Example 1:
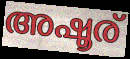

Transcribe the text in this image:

അഷൂര്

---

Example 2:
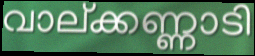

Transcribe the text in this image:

വാല്ക്കണ്ണാടി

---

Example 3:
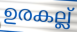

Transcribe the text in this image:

ഉരകല്ല്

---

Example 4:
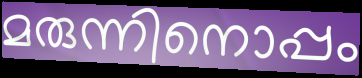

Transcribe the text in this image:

മരുന്നിനൊപ്പം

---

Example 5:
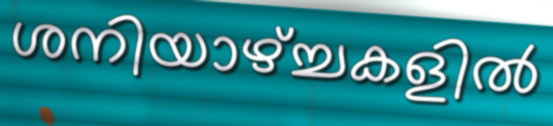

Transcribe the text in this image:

ശനിയാഴ്ച്ചകളിൽ